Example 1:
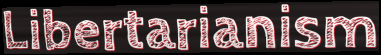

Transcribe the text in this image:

Libertarianism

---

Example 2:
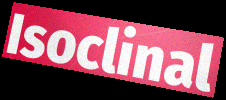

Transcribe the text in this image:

Isoclinal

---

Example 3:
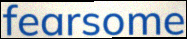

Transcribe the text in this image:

fearsome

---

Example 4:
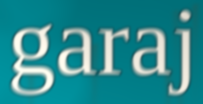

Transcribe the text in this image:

garaj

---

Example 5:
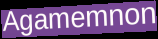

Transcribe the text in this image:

Agamemnon